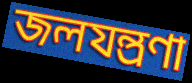
জলযন্ত্রণা